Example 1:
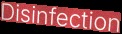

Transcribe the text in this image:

Disinfection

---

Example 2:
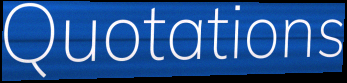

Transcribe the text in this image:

Quotations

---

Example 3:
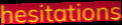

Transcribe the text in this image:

hesitations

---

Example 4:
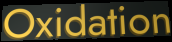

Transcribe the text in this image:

Oxidation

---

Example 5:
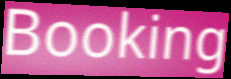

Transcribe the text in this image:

Booking